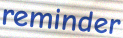
reminder